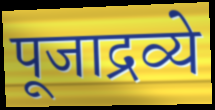
पूजाद्रव्ये